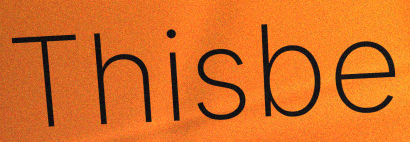
Thisbe